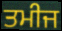
ਤਮੀਜ